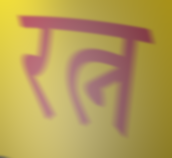
रत्न